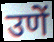
उणें